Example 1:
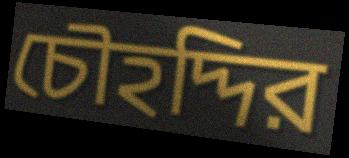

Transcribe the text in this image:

চৌহদ্দির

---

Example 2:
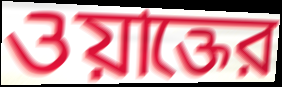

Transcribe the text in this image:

ওয়াক্তের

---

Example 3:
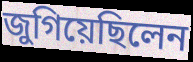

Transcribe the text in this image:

জুগিয়েছিলেন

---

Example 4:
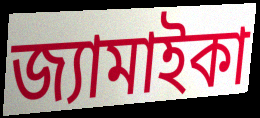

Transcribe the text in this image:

জ্যামাইকা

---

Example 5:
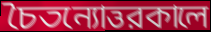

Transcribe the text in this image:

চৈতন্যোত্তরকালে